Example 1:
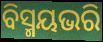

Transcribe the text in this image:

ବିସ୍ମୟଭରି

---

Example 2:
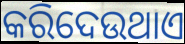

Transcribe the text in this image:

କରିଦେଉଥାଏ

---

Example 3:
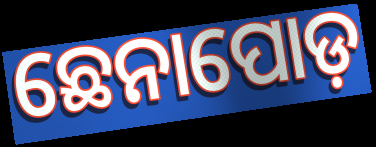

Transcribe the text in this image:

ଛେନାପୋଡ଼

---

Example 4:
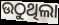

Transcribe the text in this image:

ଉଠୁଥିଲା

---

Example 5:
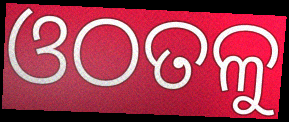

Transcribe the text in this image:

ଓଠତଳୁ